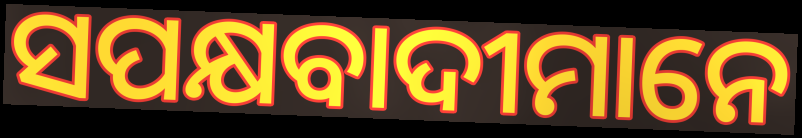
ସପକ୍ଷବାଦୀମାନେ